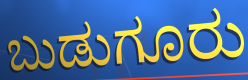
ಬುಡುಗೂರು